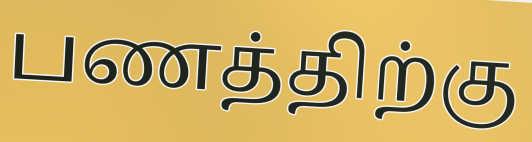
பணத்திற்கு